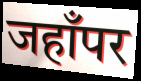
जहाँपर